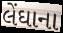
લેંઘાના